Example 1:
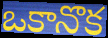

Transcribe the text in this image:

ఒకానొక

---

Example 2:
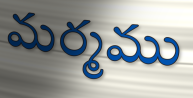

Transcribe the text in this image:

మర్మము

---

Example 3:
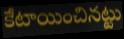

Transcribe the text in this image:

కేటాయించినట్టు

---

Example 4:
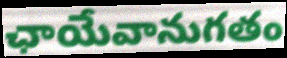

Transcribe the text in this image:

ఛాయేవానుగతం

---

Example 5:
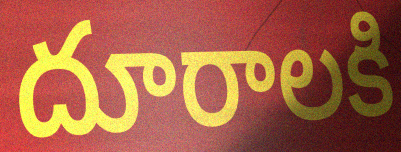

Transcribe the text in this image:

దూరాలకి